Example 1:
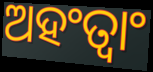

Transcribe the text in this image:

ଅହଂତ୍ୱାଂ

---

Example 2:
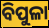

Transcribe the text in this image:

ବିପୁଳା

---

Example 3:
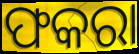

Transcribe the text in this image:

ଫକରା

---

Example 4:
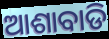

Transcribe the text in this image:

ଆଶାବାଡି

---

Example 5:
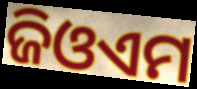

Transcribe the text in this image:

ଜିଓଏମ